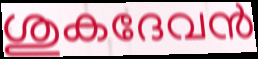
ശുകദേവൻ